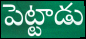
పెట్టాడు